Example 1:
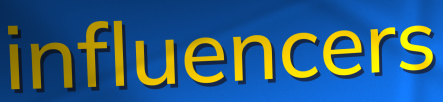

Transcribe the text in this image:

influencers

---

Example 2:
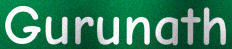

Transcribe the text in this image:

Gurunath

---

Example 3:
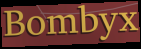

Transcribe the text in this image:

Bombyx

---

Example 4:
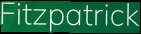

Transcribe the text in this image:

Fitzpatrick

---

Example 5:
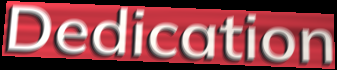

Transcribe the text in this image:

Dedication